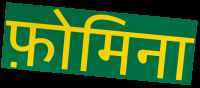
फ़ोमिना